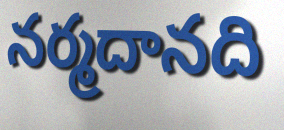
నర్మదానది